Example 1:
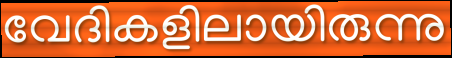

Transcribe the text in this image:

വേദികളിലായിരുന്നു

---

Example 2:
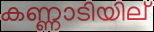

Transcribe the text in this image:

കണ്ണാടിയില്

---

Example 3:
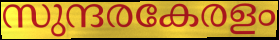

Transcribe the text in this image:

സുന്ദരകേരളം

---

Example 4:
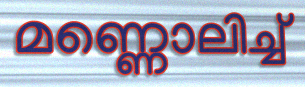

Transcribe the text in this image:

മണ്ണൊലിച്ച്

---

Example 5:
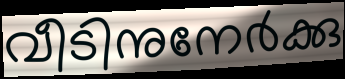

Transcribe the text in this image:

വീടിനുനേർക്കു